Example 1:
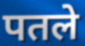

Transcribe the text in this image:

पतले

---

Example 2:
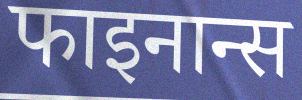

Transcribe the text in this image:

फाइनान्स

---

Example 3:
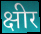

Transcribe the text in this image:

क्षीर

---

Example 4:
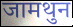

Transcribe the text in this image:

जामथुन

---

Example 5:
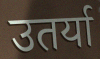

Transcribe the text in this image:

उतर्या